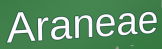
Araneae